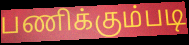
பணிக்கும்படி